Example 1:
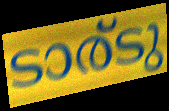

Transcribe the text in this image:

ടാര്ടു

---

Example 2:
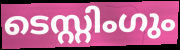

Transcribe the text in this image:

ടെസ്റ്റിംഗും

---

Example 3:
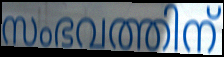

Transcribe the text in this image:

സംഭവത്തിന്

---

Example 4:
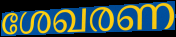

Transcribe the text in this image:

ശേഖരണ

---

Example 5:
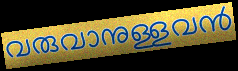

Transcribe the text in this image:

വരുവാനുള്ളവൻ